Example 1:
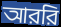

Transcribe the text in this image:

আররি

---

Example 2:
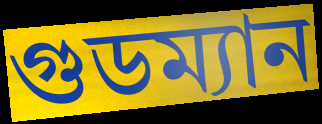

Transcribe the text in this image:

গুডম্যান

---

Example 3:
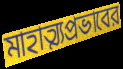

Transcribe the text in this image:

মাহাত্ম্যপ্রভাবের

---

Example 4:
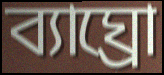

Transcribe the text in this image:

ব্যাঘ্রো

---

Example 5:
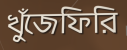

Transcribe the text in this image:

খুঁজেফিরি